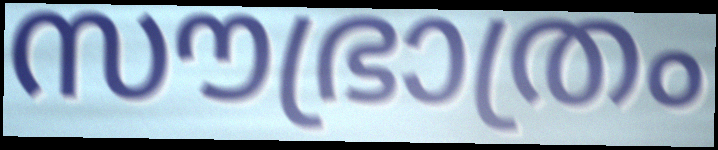
സൗഭ്രാത്രം